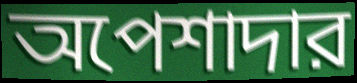
অপেশাদার